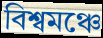
বিশ্বমঞ্চে